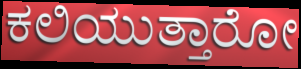
ಕಲಿಯುತ್ತಾರೋ